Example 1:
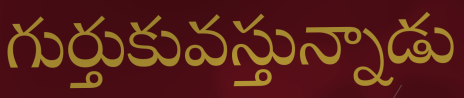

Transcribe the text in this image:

గుర్తుకువస్తున్నాడు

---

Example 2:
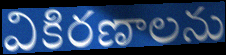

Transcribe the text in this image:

వికిరణాలను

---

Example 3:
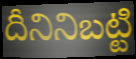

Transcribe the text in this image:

దీనినిబట్టి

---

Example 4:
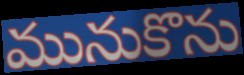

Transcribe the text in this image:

మునుకొను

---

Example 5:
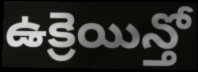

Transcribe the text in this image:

ఉక్రెయిన్తో